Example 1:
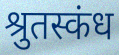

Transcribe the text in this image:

श्रुतस्कंध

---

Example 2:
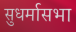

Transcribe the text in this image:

सुधर्मासभा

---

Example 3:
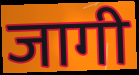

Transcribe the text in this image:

जागी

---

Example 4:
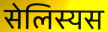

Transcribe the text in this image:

सेलिस्यस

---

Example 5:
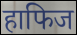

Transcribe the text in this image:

हाफिज